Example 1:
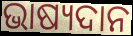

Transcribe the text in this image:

ଭାଷ୍ୟଦାନ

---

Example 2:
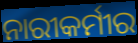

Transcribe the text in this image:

ନାରୀକର୍ମୀର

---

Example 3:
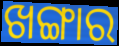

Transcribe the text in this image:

ଖଙ୍ଗାର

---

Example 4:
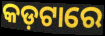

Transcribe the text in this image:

କଡ଼ଟାରେ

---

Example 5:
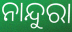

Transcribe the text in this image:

ନାନ୍ଦୁରା